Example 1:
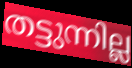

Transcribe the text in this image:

തട്ടുന്നില്ല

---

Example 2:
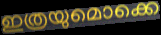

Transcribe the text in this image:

ഇത്രയുമൊക്കെ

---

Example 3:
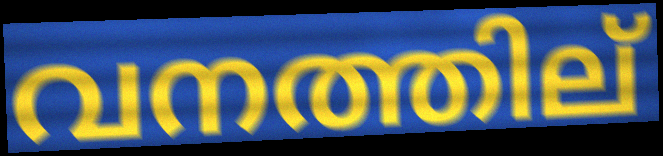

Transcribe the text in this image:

വനത്തില്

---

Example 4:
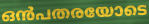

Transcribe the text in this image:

ഒൻപതരയോടെ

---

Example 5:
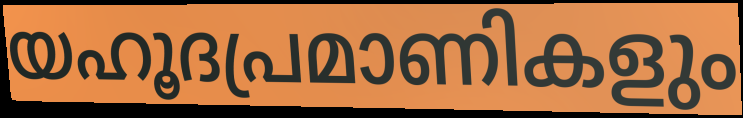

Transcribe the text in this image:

യഹൂദപ്രമാണികളും